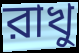
রাখু